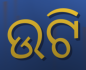
ଉଟି